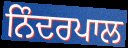
ਨਿੰਦਰਪਾਲ